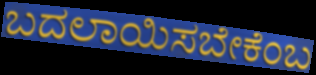
ಬದಲಾಯಿಸಬೇಕೆಂಬ